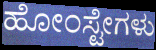
ಹೋಂಸ್ಟೇಗಳು